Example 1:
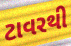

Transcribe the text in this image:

ટાવરથી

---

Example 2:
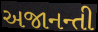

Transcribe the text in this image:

અજાનન્તી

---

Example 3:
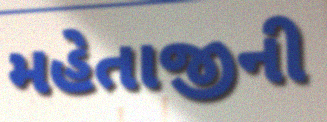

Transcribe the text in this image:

મહેતાજીની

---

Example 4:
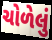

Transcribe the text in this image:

ચોળેલું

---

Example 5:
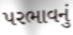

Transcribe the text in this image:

પરભાવનું